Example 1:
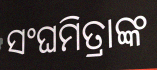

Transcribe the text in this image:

ସଂଘମିତ୍ରାଙ୍କ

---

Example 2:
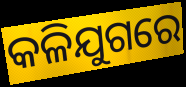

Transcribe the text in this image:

କଳିଯୁଗରେ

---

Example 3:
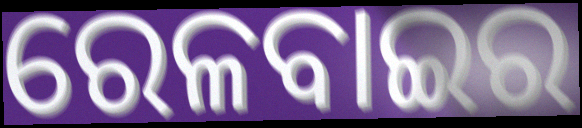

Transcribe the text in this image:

ରେଳବାଇର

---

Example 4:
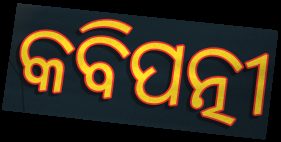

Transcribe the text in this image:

କବିପତ୍ନୀ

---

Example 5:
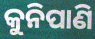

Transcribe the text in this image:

କୁନିପାଣି